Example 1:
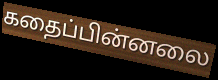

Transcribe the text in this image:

கதைப்பின்னலை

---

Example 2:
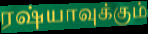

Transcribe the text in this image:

ரஷ்யாவுக்கும்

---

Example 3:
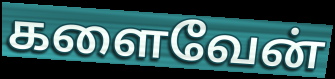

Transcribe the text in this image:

களைவேன்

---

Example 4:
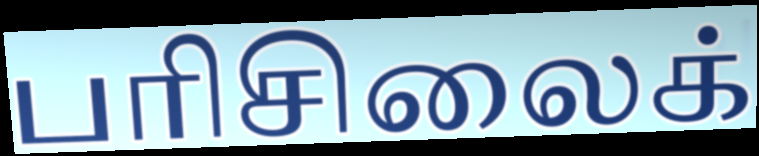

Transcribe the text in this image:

பரிசிலைக்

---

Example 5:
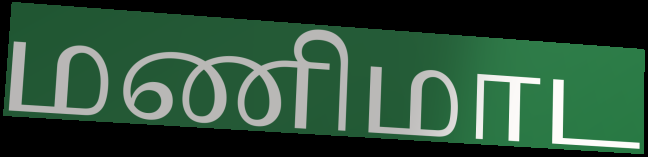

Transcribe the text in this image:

மணிமாட